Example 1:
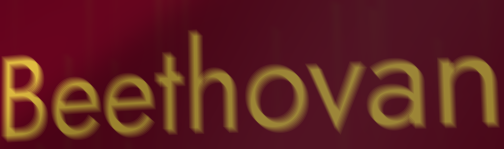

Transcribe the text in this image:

Beethovan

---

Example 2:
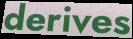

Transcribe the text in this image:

derives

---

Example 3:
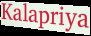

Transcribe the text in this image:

Kalapriya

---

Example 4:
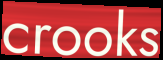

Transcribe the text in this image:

crooks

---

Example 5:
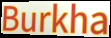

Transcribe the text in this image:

Burkha